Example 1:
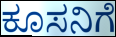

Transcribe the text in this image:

ಕೂಸನಿಗೆ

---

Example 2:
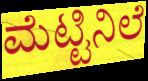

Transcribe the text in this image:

ಮೆಟ್ಟಿನಿಲೆ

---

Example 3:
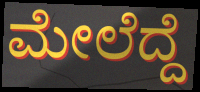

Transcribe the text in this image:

ಮೇಲೆದ್ದೆ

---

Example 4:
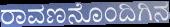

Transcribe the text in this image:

ರಾವಣನೊಂದಿಗಿನ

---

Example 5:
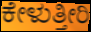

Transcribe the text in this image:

ಕೇಳುತ್ತೀರಿ